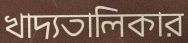
খাদ্যতালিকার